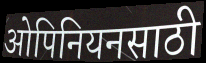
ओपिनियनसाठी